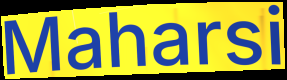
Maharsi